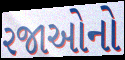
રજાઓનો